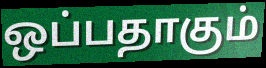
ஒப்பதாகும்